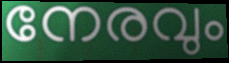
നേരവും